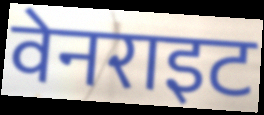
वेनराइट